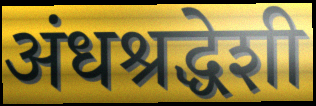
अंधश्रद्धेशी